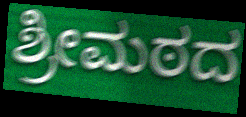
ಶ್ರೀಮಠದ